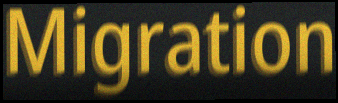
Migration